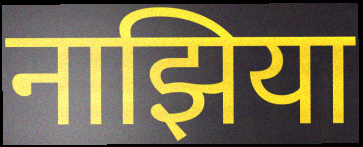
नाझिया